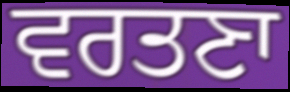
ਵਰਤਣਾ